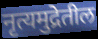
नृत्यमुद्रेतील